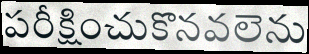
పరీక్షించుకొనవలెను